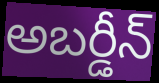
అబర్డీన్